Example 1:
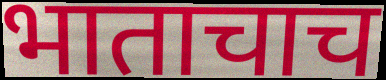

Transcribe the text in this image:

भाताचाच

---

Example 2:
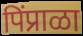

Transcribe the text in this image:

पिंप्राळा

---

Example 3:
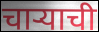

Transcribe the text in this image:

चाऱ्याची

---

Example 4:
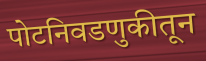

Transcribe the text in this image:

पोटनिवडणुकीतून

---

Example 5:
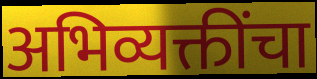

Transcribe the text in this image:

अभिव्यक्तींचा